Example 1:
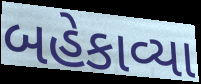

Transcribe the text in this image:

બહેકાવ્યા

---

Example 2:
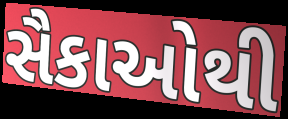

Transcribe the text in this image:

સૈકાઓથી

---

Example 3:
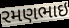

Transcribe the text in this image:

રમણભાઇ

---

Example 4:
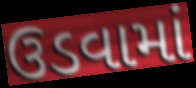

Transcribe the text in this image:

ઉડવામાં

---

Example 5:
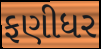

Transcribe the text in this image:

ફણીધર